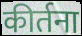
कीर्तना